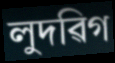
লুদৱিগ